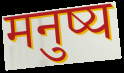
मनुष्य